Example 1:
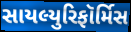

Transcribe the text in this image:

સાયલ્યુરિફૉર્મિસ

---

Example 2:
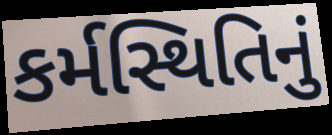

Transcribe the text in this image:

કર્મસ્થિતિનું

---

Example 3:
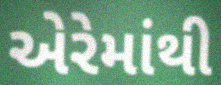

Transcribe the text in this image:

એરેમાંથી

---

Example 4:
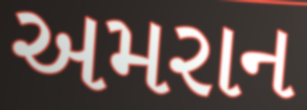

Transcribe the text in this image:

અમરાન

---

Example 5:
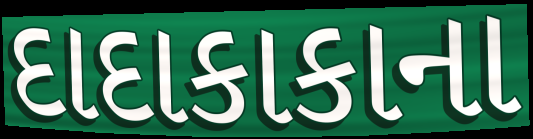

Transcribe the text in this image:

દાદાકાકાના